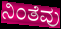
ನಿಂತೆವು